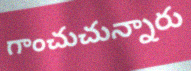
గాంచుచున్నారు